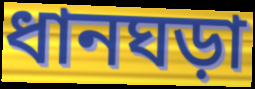
ধানঘড়া